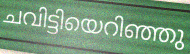
ചവിട്ടിയെറിഞ്ഞു